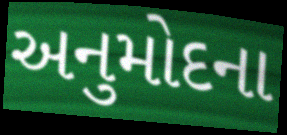
અનુમોદના